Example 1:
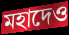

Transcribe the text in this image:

মহাদেও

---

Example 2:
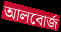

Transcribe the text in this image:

আলবোর্জ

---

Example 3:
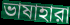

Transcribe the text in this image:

ভাষাহারা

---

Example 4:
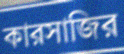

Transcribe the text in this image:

কারসাজির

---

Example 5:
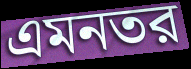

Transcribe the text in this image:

এমনতর